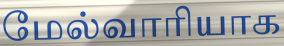
மேல்வாரியாக